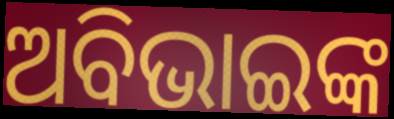
ଅବିଭାଇଙ୍କ